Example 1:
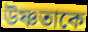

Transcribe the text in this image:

উষ্ণতাকে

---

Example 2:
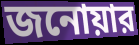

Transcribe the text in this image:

জনোয়ার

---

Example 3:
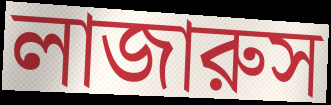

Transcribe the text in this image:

লাজারুস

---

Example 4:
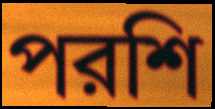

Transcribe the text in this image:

পরশি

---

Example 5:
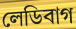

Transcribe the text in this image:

লেডিবাগ